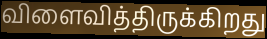
விளைவித்திருக்கிறது